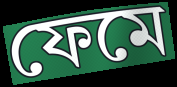
ফেমে